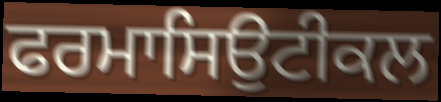
ਫਰਮਾਸਿਉਟੀਕਲ